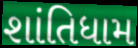
શાંતિધામ